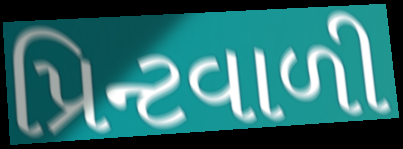
પ્રિન્ટવાળી